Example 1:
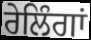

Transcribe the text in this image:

ਰੇਲਿੰਗਾਂ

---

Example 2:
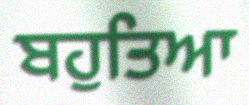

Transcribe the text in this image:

ਬਹੁਤਿਆ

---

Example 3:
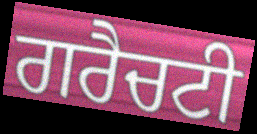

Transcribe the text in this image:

ਗਰੈਚਟੀ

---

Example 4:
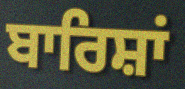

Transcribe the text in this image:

ਬਾਰਿਸ਼ਾਂ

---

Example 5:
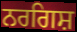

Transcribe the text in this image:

ਨਰਗਿਸ਼